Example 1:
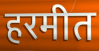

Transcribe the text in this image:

हरमीत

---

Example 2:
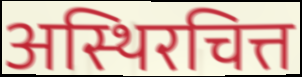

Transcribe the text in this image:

अस्थिरचित्त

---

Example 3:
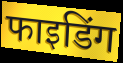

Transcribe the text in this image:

फाइडिंग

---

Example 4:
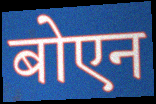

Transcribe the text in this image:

बोएन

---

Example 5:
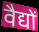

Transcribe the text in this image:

वैद्यों